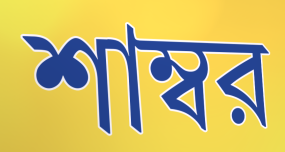
শাম্বর